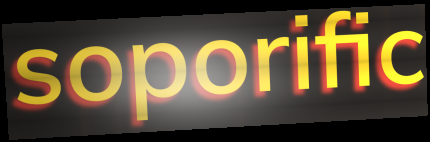
soporific